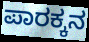
ಪಾರಕ್ಕನ